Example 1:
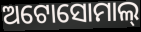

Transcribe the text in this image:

ଅଟୋସୋମାଲ୍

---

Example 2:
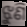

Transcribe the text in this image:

ଝୁଣି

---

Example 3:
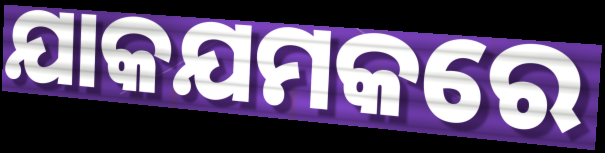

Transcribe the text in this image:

ଯାକଯମକରେ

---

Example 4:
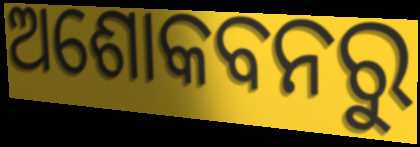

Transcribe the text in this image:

ଅଶୋକବନରୁ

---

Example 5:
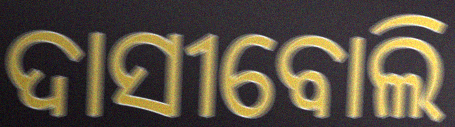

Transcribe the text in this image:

ଦାସୀବୋଲି